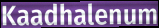
Kaadhalenum